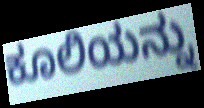
ಕೂಲಿಯನ್ನು